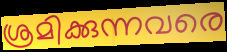
ശ്രമിക്കുന്നവരെ